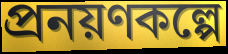
প্রনয়ণকল্পে